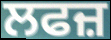
ਲਫਜ਼